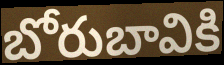
బోరుబావికి